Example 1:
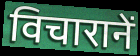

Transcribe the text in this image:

विचारानें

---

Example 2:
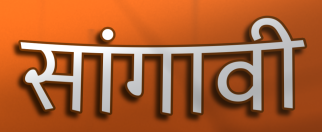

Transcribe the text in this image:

सांगावी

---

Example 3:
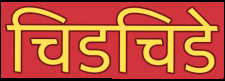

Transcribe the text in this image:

चिडचिडे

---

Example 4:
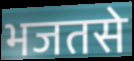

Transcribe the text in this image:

भजतसे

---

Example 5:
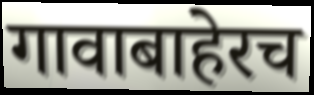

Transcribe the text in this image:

गावाबाहेरच